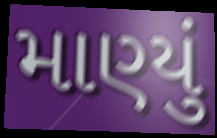
માણ્યું